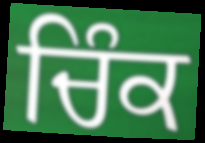
ਚਿੰਕ